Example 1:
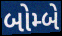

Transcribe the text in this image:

બોમ્બે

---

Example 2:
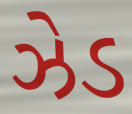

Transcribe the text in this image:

ઝેડ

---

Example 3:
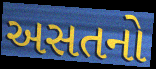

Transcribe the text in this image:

અસતનો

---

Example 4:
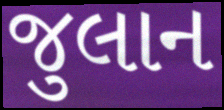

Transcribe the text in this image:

જુલાન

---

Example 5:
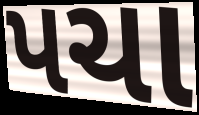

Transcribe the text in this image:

પચા